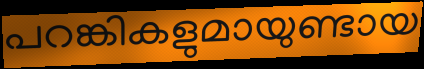
പറങ്കികളുമായുണ്ടായ